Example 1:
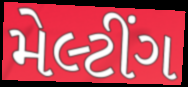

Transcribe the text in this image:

મેલ્ટીંગ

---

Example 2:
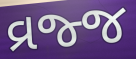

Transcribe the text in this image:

વ્રજ્જ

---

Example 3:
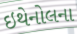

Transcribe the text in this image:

ઇથેનોલના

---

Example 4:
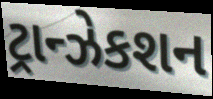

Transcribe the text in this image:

ટ્રાન્ઝેકશન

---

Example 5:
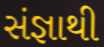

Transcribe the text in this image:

સંજ્ઞાથી